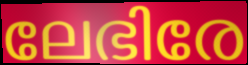
ലേഭിരേ